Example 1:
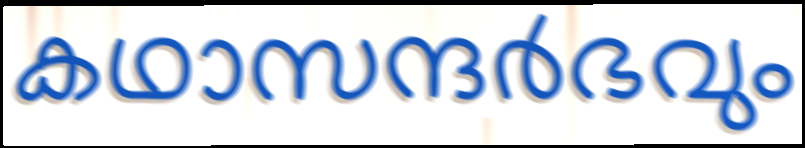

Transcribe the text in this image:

കഥാസന്ദർഭവും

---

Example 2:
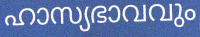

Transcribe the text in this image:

ഹാസ്യഭാവവും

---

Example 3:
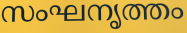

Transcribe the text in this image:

സംഘനൃത്തം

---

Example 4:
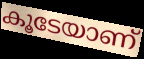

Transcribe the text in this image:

കൂടേയാണ്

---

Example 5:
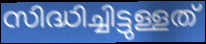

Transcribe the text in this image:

സിദ്ധിച്ചിട്ടുള്ളത്